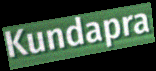
Kundapra